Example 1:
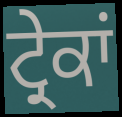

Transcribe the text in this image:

ਟ੍ਰੇਕਾਂ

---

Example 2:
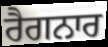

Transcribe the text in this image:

ਰੈਗਨਾਰ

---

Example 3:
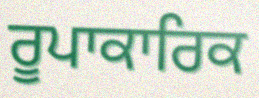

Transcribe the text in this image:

ਰੂਪਾਕਾਰਿਕ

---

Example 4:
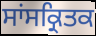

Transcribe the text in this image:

ਸਾਂਸਕ੍ਰਿਤਕ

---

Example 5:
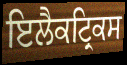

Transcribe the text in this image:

ਇਲੈਕਟ੍ਰਿਕਸ